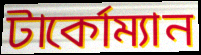
টার্কোম্যান